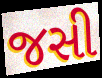
જસી